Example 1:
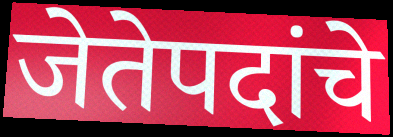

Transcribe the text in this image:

जेतेपदांचे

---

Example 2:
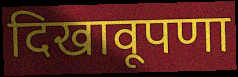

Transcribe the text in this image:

दिखावूपणा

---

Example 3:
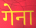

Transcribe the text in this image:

गेना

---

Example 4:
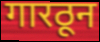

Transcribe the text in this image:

गारठून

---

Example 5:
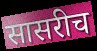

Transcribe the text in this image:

सासरीच